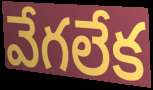
వేగలేక